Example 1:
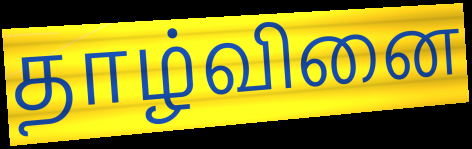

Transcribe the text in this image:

தாழ்வினை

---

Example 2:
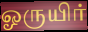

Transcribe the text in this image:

ஓருயிர்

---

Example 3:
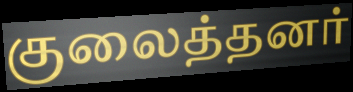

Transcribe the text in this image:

குலைத்தனர்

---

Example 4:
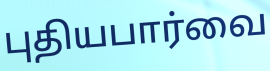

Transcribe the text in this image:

புதியபார்வை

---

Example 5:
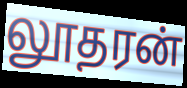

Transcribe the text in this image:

லூதரன்